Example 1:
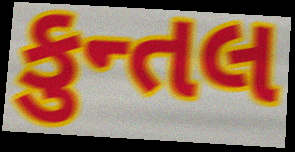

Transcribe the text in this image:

કુન્તલ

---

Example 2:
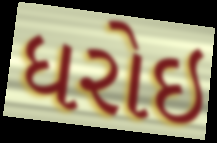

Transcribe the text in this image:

ધરોઇ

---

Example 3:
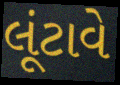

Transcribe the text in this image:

લૂંટાવે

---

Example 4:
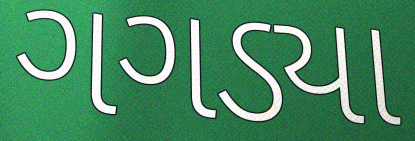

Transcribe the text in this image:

ગગડ્યા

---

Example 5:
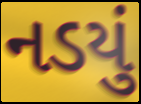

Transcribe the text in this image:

નડયું